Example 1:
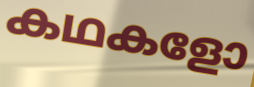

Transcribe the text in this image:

കഥകളോ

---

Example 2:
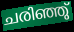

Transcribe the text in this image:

ചരിഞ്ഞു്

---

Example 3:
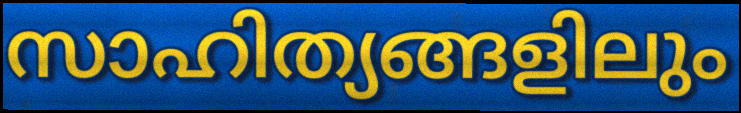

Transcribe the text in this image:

സാഹിത്യങ്ങളിലും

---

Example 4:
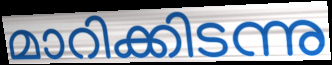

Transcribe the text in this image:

മാറിക്കിടന്നു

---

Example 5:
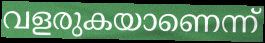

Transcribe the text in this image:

വളരുകയാണെന്ന്